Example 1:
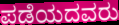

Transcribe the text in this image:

ಪಡೆಯದವರು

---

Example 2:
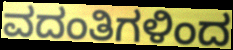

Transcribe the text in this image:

ವದಂತಿಗಳಿಂದ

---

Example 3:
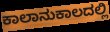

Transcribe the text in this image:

ಕಾಲಾನುಕಾಲದಲ್ಲಿ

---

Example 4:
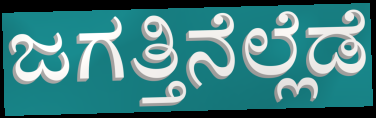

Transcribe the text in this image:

ಜಗತ್ತಿನೆಲ್ಲೆಡೆ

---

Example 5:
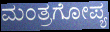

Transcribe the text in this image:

ಮಂತ್ರಗೋಪ್ಯ